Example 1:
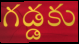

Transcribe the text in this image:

గడ్డకు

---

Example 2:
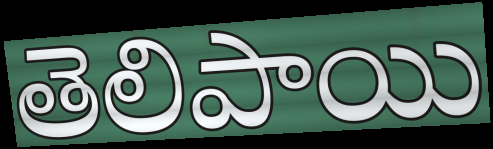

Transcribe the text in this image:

తెలిపాయి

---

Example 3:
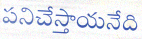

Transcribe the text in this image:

పనిచేస్తాయనేది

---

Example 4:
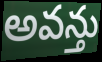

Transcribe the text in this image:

అవన్తు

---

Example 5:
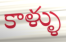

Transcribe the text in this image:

కాళ్ళు